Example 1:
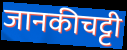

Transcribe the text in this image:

जानकीचट्टी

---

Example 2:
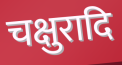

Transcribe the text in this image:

चक्षुरादि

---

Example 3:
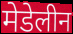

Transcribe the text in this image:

मेडेलीन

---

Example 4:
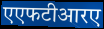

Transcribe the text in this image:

एएफटीआरए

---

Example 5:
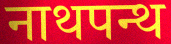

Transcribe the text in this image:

नाथपन्थ